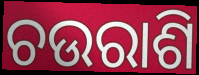
ଚଉରାଶି